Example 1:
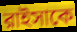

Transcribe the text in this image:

রাইসাকে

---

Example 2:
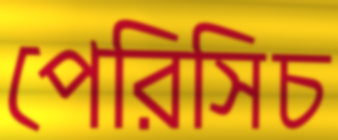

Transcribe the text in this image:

পেরিসিচ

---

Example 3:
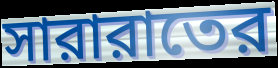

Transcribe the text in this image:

সারারাতের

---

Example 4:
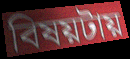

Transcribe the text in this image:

বিষয়টায়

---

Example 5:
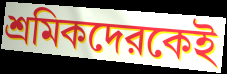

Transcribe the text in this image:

শ্রমিকদেরকেই